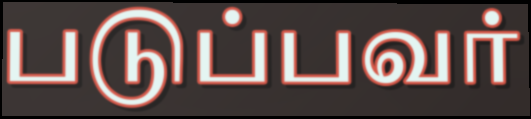
படுப்பவர்